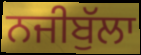
ਨਜੀਬੁੱਲਾ